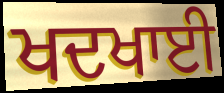
ਖਦਖਾਈ